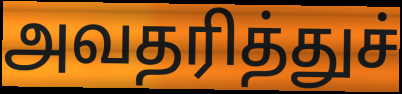
அவதரித்துச்